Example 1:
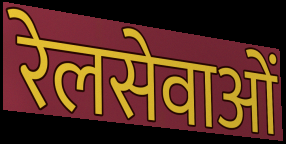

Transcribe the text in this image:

रेलसेवाओं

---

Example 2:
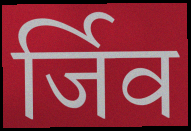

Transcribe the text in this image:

र्जिव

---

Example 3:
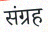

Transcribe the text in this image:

संग्रह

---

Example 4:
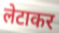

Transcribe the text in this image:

लेटाकर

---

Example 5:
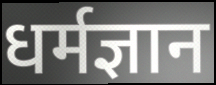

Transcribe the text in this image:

धर्मज्ञान